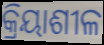
କ୍ରିୟାଶୀଳ